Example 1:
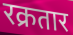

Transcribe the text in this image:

रक्रतार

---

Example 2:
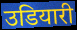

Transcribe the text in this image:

उडियारी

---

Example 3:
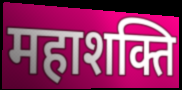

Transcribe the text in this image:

महाशक्ति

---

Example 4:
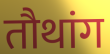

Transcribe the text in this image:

तौथांग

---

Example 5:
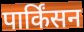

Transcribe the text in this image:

पार्किंसन